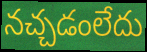
నచ్చడంలేదు